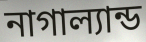
নাগাল্যান্ড